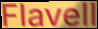
Flavell